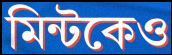
মিন্টকেও